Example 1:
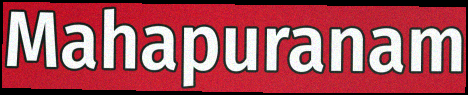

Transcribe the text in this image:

Mahapuranam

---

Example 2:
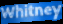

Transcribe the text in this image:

Whitney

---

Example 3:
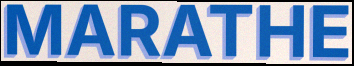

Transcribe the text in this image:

MARATHE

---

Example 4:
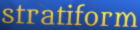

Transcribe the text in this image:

stratiform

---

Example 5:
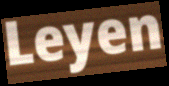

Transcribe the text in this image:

Leyen